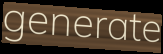
generate